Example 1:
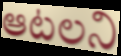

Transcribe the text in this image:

ఆటలని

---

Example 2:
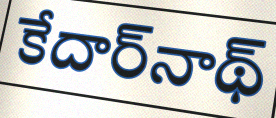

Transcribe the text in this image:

కేదార్‌నాథ్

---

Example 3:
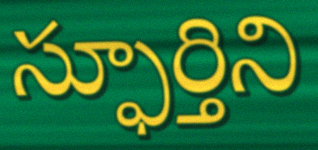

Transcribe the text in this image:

స్ఫూర్తిని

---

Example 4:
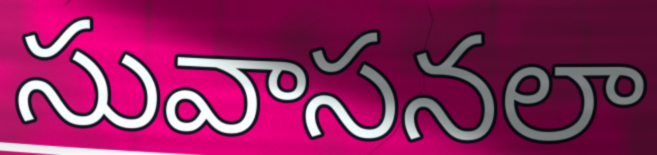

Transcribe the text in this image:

సువాసనలా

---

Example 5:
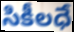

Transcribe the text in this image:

సికీలధే